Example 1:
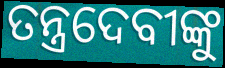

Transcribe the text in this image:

ତନ୍ତ୍ରଦେବୀଙ୍କୁ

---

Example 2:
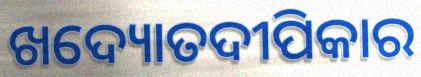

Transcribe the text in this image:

ଖଦ୍ୟୋତଦୀପିକାର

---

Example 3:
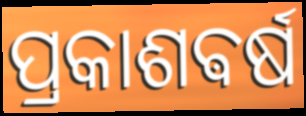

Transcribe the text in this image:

ପ୍ରକାଶଵର୍ଷ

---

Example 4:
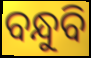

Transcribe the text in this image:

ବନ୍ଧୁବି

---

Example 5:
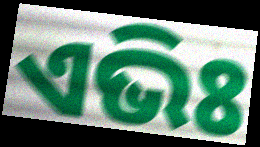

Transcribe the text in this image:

ଏଭିଃ